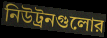
নিউট্রনগুলোর